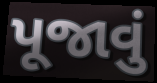
પૂજાવું